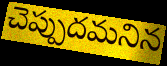
చెప్పుదమనిన